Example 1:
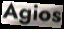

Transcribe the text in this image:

Agios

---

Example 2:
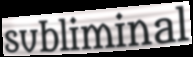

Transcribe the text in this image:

subliminal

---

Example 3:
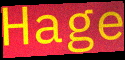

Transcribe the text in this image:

Hage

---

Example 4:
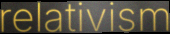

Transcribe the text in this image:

relativism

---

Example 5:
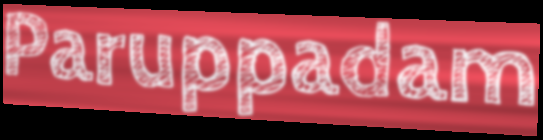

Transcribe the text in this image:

Paruppadam